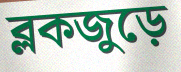
ব্লকজুড়ে